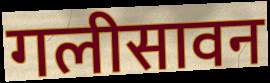
गलीसावन